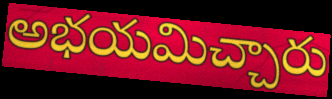
అభయమిచ్చారు